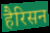
हैरिसन